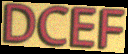
DCEF